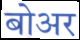
बोअर